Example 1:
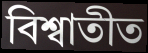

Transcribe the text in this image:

বিশ্বাতীত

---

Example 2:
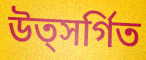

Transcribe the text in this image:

উত্সর্গিত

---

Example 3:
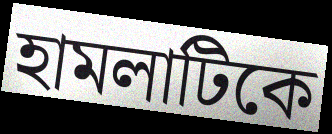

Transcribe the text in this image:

হামলাটিকে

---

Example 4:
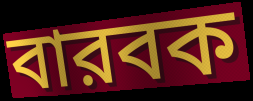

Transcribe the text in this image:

বারবক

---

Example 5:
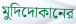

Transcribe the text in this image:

মুদিদোকানের